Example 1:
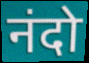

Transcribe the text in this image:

नंदो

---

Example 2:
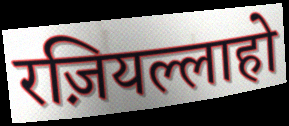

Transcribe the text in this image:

रज़ियल्लाहो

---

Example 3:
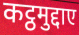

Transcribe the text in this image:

कट्ठमुद्दाए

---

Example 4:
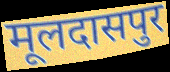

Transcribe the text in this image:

मूलदासपुर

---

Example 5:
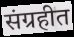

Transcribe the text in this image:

संग्रहीत